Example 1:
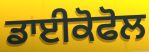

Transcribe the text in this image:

ਡਾਈਕੋਫੋਲ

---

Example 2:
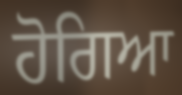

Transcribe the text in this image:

ਹੋਗਿਆ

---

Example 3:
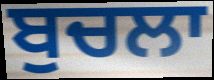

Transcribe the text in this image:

ਬੁਚਲਾ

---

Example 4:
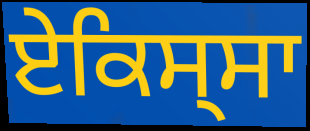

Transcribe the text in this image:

ਏਕਿਸ੍ਸਾ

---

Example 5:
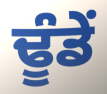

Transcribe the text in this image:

ਢੂੰਡੇਂ